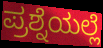
ಪ್ರಶ್ನೆಯಲ್ಲೆ